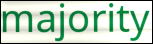
majority